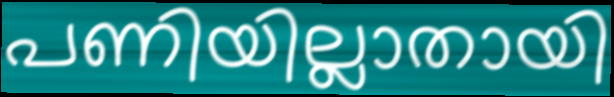
പണിയില്ലാതായി